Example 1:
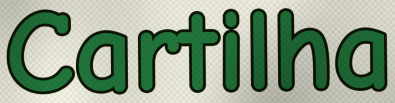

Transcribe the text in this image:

Cartilha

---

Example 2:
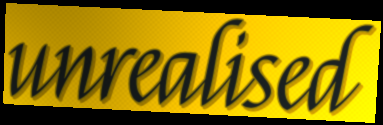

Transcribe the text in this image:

unrealised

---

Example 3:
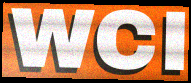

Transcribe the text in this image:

WCI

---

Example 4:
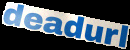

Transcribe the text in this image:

deadurl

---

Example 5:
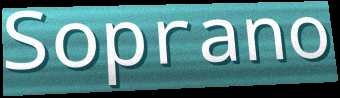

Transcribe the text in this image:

Soprano